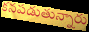
కనపడుతున్నారు